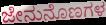
ಜೇನುನೊಣಗಳ